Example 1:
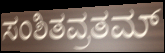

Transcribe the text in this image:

ಸಂಶಿತವ್ರತಮ್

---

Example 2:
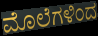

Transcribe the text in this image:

ಮೊಲೆಗಳಿಂದ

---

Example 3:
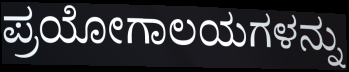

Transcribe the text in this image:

ಪ್ರಯೋಗಾಲಯಗಳನ್ನು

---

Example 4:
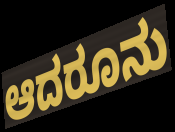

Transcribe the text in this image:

ಆದರೂನು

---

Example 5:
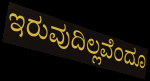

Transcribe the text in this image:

ಇರುವುದಿಲ್ಲವೆಂದೂ